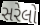
સરેલો